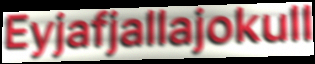
Eyjafjallajokull